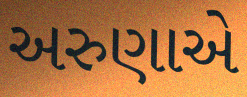
અરુણાએ